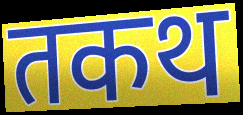
तकथ